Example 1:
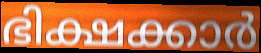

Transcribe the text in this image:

ഭിക്ഷക്കാർ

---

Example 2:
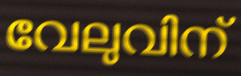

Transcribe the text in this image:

വേലുവിന്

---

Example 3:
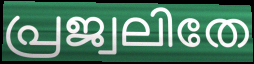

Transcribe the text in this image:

പ്രജ്വലിതേ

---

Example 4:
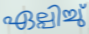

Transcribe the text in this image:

ഏല്പിച്ചു്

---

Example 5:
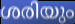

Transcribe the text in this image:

ശരിയും